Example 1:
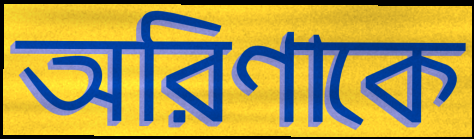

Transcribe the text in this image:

অরিণাকে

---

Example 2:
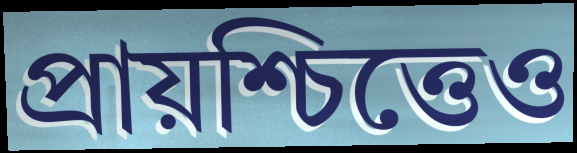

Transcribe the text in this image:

প্রায়শ্চিত্তেও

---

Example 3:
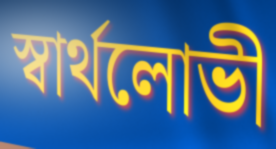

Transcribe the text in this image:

স্বার্থলোভী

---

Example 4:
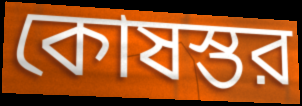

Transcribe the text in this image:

কোষস্তর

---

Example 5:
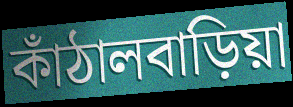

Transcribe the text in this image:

কাঁঠালবাড়িয়া